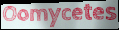
Oomycetes